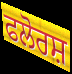
ਫਲੋਰਸ਼